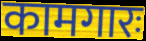
कामगारः